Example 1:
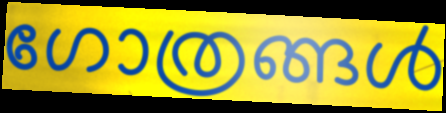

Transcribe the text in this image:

ഗോത്രങ്ങൾ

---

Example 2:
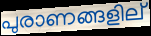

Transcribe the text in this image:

പുരാണങ്ങളില്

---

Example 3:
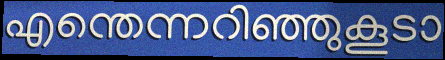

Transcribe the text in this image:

എന്തെന്നറിഞ്ഞുകൂടാ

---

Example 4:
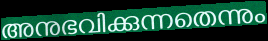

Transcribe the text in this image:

അനുഭവിക്കുന്നതെന്നും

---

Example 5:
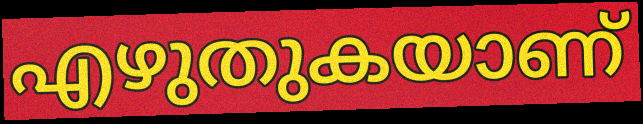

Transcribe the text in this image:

എഴുതുകയാണ്